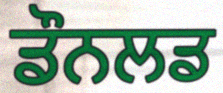
ਡੌਨਲਡ